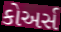
કોઅર્સ